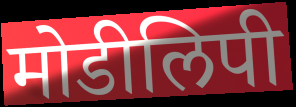
मोडीलिपी